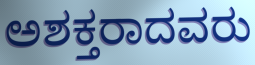
ಅಶಕ್ತರಾದವರು